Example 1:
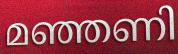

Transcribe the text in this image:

മഞ്ഞണി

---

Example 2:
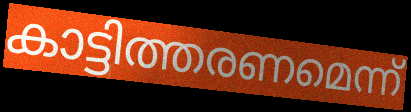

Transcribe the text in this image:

കാട്ടിത്തരണമെന്ന്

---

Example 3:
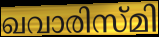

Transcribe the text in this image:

ഖവാരിസ്മി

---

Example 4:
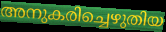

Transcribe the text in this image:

അനുകരിച്ചെഴുതിയ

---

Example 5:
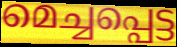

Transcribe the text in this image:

മെച്ചപ്പെട്ട